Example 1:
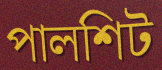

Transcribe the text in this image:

পালশিট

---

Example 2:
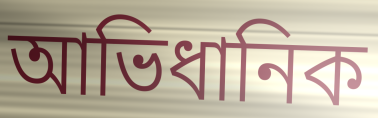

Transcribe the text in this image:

আভিধানিক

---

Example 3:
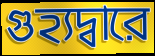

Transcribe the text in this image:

গুহ্যদ্বারে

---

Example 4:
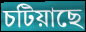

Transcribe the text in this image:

চটিয়াছে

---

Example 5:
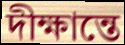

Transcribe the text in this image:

দীক্ষান্তে